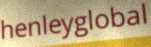
henleyglobal